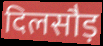
दिलसौड़